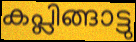
കപ്ലിങ്ങാട്ടു